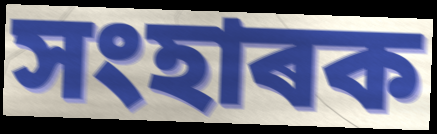
সংহাৰক